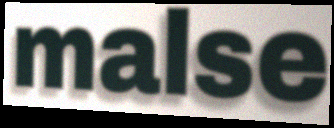
malse